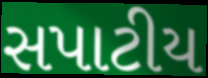
સપાટીય